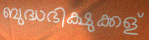
ബുദ്ധഭിക്ഷുക്കള്